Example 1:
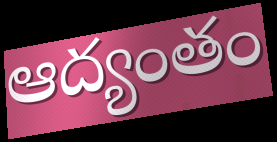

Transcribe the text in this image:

ఆద్యంతం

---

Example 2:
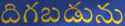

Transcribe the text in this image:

దిగబడును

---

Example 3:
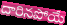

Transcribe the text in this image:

దారినపోయే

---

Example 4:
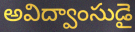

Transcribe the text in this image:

అవిద్వాంసుడై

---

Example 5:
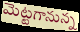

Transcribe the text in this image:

మెట్టగానున్న